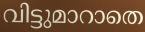
വിട്ടുമാറാതെ